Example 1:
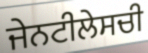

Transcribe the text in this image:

ਜੇਨਟੀਲੇਸਚੀ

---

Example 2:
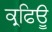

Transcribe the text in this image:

ਕ੍ਰਫਿਊ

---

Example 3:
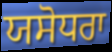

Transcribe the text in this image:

ਯਸੋਧਰਾ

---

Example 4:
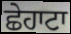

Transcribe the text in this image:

ਛੇਹਾਟਾ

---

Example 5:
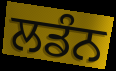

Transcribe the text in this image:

ਲਡੰਨ